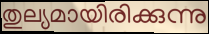
തുല്യമായിരിക്കുന്നു